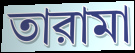
তারামা